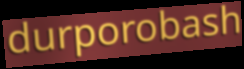
durporobash